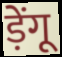
ड़ेंगू